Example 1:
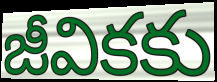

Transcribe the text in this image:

జీవికకు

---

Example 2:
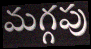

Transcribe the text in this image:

మగ్గపు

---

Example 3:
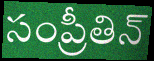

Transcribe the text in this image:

సంప్రీతిన్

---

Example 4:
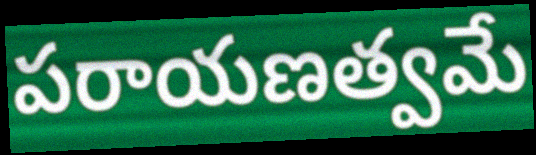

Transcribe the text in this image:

పరాయణత్వమే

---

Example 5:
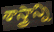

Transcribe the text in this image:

శాస్త్రాన్ని